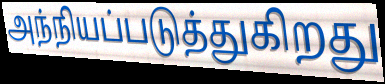
அந்நியப்படுத்துகிறது